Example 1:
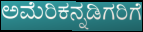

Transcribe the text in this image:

ಅಮೆರಿಕನ್ನಡಿಗರಿಗೆ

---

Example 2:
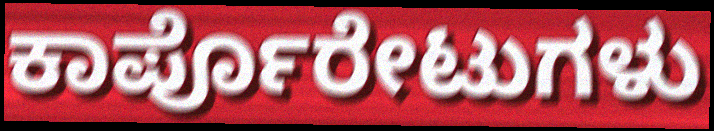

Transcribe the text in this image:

ಕಾರ್ಪೊರೇಟುಗಳು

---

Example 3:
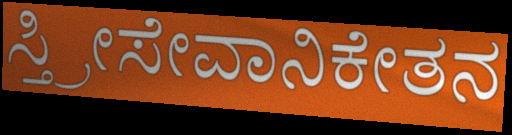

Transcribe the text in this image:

ಸ್ತ್ರೀಸೇವಾನಿಕೇತನ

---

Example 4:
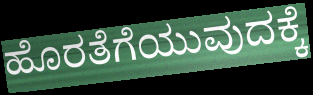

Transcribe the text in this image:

ಹೊರತೆಗೆಯುವುದಕ್ಕೆ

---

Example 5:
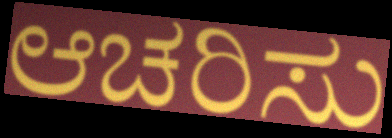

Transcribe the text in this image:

ಆಚರಿಸು